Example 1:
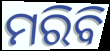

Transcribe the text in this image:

ମରିବି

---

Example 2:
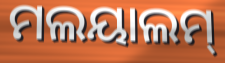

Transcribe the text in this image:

ମଲୟାଲମ୍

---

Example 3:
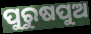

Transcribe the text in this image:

ପୁରୁଷପୁଅ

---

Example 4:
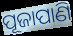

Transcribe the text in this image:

ପୂଜାପାଣି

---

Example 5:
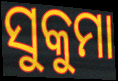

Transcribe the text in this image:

ସୁକୁମା